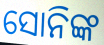
ସୋନିଙ୍କ